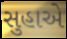
સુહાએ